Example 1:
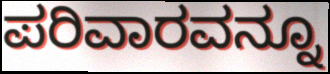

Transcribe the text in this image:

ಪರಿವಾರವನ್ನೂ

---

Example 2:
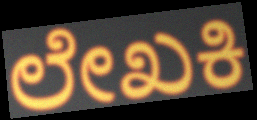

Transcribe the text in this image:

ಲೇಖಕಿ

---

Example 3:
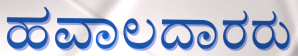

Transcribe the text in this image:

ಹವಾಲದಾರರು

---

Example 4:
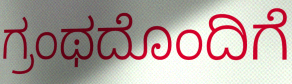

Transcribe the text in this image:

ಗ್ರಂಥದೊಂದಿಗೆ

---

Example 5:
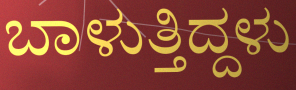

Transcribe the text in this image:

ಬಾಳುತ್ತಿದ್ದಳು